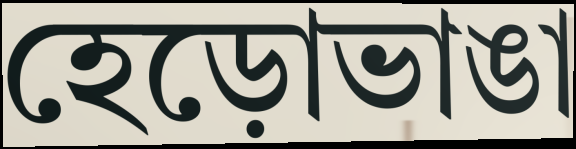
হেড়োভাঙা